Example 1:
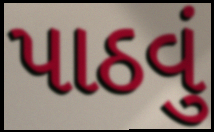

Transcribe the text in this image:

પાઠવું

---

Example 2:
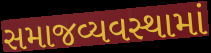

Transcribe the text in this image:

સમાજવ્યવસ્થામાં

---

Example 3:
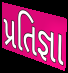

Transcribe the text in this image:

પ્રતિજ્ઞા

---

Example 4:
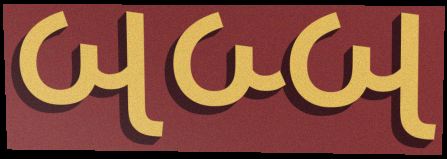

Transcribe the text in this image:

બબ્બ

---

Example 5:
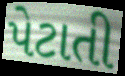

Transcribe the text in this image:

પેટાતી